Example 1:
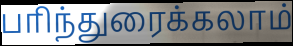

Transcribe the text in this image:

பரிந்துரைக்கலாம்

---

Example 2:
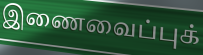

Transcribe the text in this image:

இணைவைப்புக்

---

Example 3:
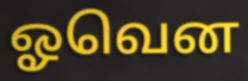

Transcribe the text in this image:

ஓவென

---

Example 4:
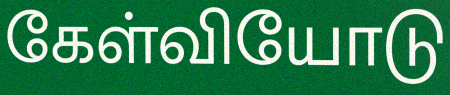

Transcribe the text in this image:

கேள்வியோடு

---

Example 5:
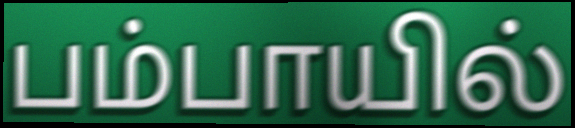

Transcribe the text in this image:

பம்பாயில்